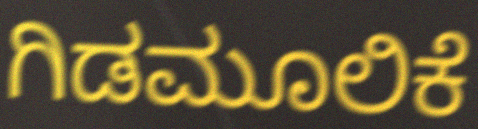
ಗಿಡಮೂಲಿಕೆ